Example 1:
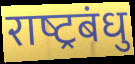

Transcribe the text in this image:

राष्ट्रबंधु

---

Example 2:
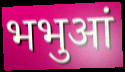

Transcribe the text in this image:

भभुआं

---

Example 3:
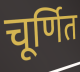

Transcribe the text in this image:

चूर्णित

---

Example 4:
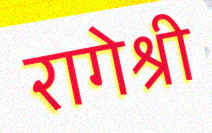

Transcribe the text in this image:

रागेश्री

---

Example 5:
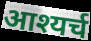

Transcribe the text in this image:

आश्यर्च